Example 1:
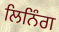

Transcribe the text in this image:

ਲਿਨਿੰਗ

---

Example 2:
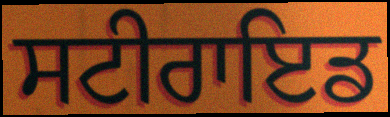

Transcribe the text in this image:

ਸਟੀਰਾਇਡ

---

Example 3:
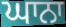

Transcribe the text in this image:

ਘਾਨਾ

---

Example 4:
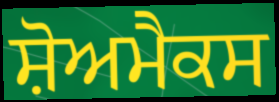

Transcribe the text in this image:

ਸ਼ੋਅਮੈਕਸ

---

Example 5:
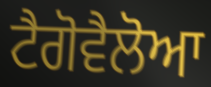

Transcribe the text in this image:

ਟੈਗੋਵੈਲੋਆ